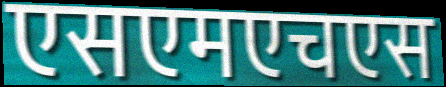
एसएमएचएस